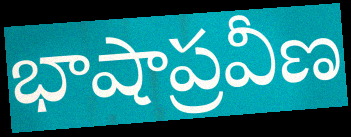
భాషాప్రవీణ